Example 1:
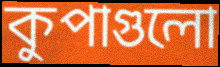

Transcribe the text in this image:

কুপাগুলো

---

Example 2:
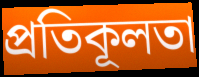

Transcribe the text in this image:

প্রতিকূলতা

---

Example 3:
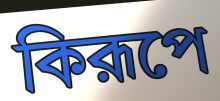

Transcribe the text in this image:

কিরূপে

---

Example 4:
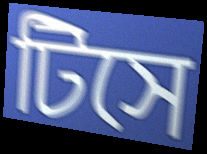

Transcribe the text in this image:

টিসে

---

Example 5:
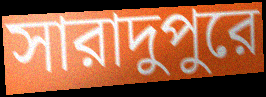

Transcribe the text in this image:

সারাদুপুরে